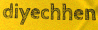
diyechhen